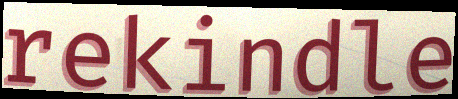
rekindle